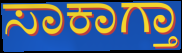
ಸಾಕಾಗ್ತಾ